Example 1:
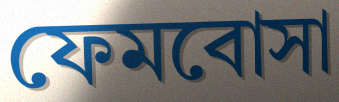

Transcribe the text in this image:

ফেমবোসা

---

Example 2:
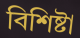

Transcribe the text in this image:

বিশিষ্টা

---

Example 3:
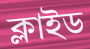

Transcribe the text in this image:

ক্লাইড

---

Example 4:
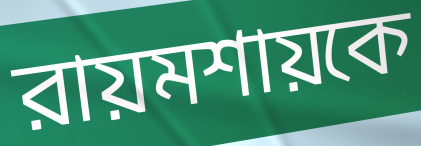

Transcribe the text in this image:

রায়মশায়কে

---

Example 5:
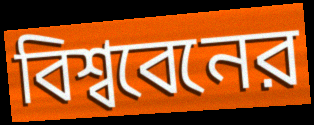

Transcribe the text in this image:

বিশ্ববেনের